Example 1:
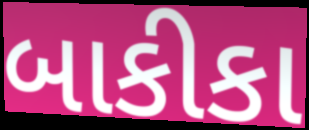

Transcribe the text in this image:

બાકીકા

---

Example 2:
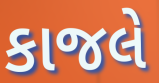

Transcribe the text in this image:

કાજલે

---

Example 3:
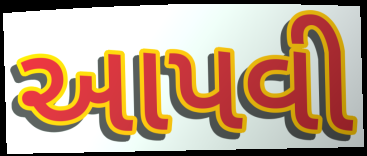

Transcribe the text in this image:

આપવી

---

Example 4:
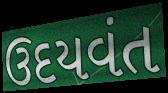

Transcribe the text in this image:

ઉદયવંત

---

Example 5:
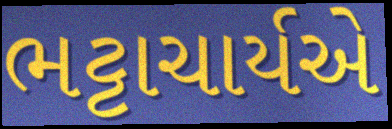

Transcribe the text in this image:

ભટ્ટાચાર્યએ